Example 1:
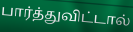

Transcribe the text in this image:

பார்த்துவிட்டால்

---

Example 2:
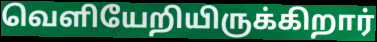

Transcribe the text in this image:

வெளியேறியிருக்கிறார்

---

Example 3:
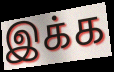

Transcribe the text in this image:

இக்க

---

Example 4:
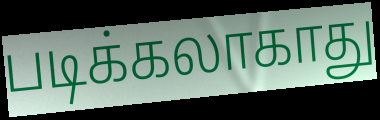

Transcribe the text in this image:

படிக்கலாகாது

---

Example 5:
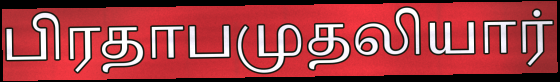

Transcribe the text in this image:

பிரதாபமுதலியார்